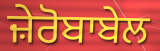
ਜ਼ੇਰੋਬਾਬੇਲ